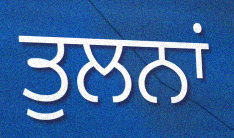
ਤੁਲਨਾਂ